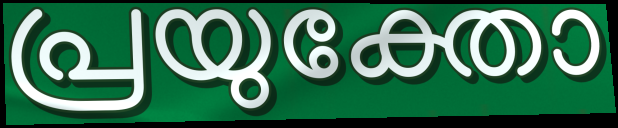
പ്രയുക്തോ